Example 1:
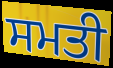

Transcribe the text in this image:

ਸਮਤੀ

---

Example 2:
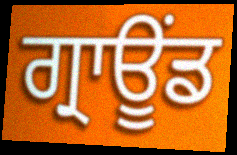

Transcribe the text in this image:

ਗ੍ਰਾਊਂਡ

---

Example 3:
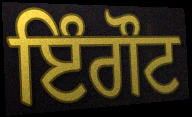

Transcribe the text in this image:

ਇੰਗੌਟ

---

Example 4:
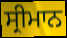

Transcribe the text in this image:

ਸ੍ਰੀਮਾਨ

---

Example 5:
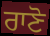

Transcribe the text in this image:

ਰਾਣੋ